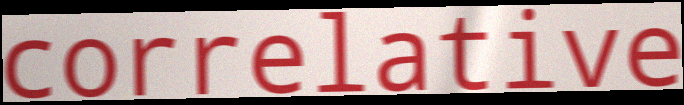
correlative